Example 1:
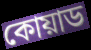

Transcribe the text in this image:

কোয়াড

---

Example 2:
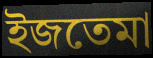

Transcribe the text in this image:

ইজতেমা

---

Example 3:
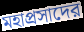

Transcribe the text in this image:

মহাপ্রসাদের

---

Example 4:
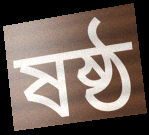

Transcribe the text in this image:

ষষ্ঠ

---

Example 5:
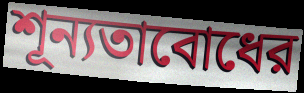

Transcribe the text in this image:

শূন্যতাবোধের